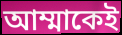
আম্মাকেই